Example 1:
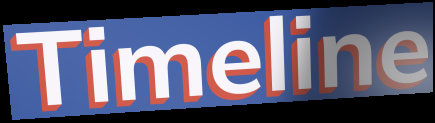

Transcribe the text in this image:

Timeline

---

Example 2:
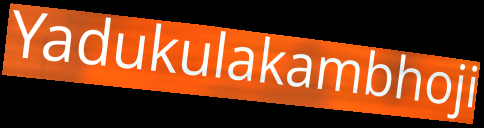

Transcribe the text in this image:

Yadukulakambhoji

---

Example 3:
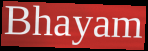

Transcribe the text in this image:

Bhayam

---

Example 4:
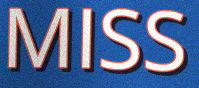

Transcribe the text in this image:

MISS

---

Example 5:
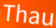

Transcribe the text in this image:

Thau